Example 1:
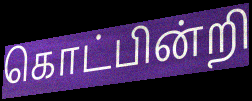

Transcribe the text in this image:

கொட்பின்றி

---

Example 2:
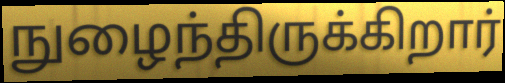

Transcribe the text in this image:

நுழைந்திருக்கிறார்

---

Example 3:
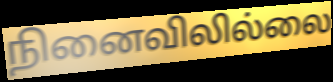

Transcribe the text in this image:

நினைவிலில்லை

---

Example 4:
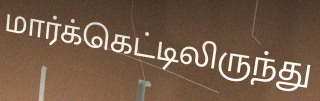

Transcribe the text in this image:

மார்க்கெட்டிலிருந்து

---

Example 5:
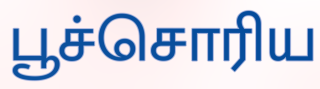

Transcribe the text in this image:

பூச்சொரிய